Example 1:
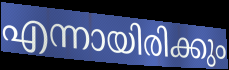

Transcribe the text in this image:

എന്നായിരിക്കും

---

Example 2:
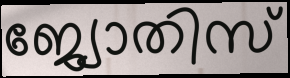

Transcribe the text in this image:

ജ്യോതിസ്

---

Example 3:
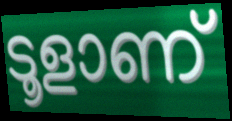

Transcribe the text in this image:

ടൂളാണ്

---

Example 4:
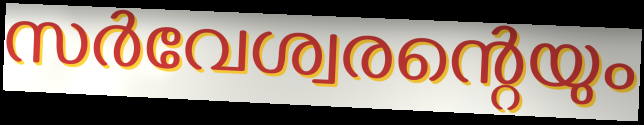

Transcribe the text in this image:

സർവേശ്വരന്റെയും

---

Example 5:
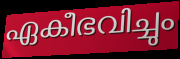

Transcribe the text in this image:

ഏകീഭവിച്ചും